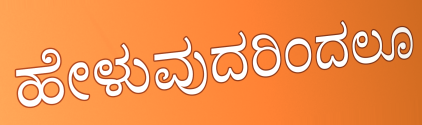
ಹೇಳುವುದರಿಂದಲೂ